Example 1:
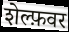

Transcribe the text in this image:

शेल्फ़वर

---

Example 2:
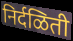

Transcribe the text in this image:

निर्दळिती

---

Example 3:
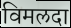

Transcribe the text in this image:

विमलदा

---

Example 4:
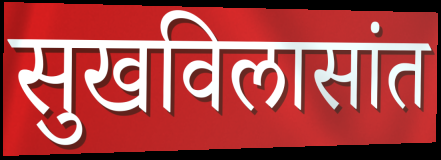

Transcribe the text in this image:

सुखविलासांत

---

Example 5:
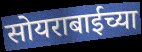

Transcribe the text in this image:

सोयराबाईच्या